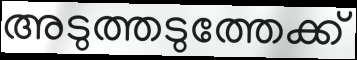
അടുത്തടുത്തേക്ക്